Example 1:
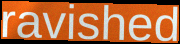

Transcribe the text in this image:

ravished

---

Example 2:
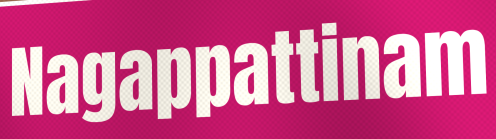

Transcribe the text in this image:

Nagappattinam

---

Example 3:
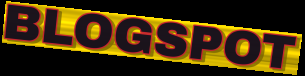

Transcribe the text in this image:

BLOGSPOT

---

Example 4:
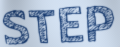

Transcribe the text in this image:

STEP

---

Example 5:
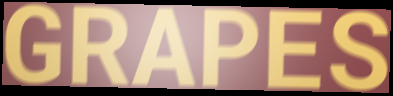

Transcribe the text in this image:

GRAPES